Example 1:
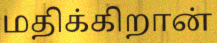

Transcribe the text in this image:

மதிக்கிறான்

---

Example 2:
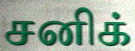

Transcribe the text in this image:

சனிக்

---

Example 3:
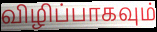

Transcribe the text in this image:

விழிப்பாகவும்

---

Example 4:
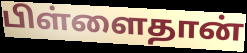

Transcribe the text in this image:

பிள்ளைதான்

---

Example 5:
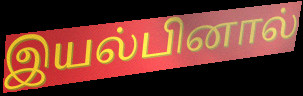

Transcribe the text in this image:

இயல்பினால்